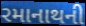
રમાનાથની